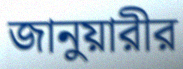
জানুয়ারীর